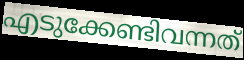
എടുക്കേണ്ടിവന്നത്